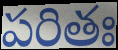
పరితః